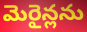
మెరైన్లను